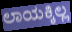
ಲಾಯಕ್ಕಿಲ್ಲ